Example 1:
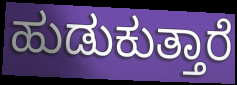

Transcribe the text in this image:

ಹುಡುಕುತ್ತಾರೆ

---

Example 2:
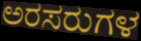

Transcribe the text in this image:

ಅರಸರುಗಳ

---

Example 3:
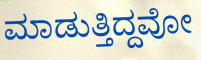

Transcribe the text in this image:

ಮಾಡುತ್ತಿದ್ದವೋ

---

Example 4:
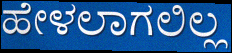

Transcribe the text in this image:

ಹೇಳಲಾಗಲಿಲ್ಲ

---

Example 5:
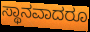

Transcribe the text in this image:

ಸ್ಥಾನವಾದರೂ